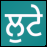
ਲੁਟੇ